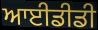
ਆਈਡੀਡੀ